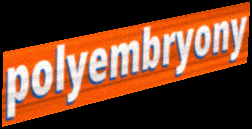
polyembryony